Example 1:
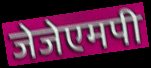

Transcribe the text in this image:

जेजेएमपी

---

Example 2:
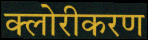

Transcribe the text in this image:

क्लोरीकरण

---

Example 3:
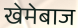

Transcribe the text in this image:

खेमेबाज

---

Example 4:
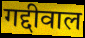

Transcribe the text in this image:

गद्दीवाल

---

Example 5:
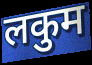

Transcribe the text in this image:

लकुम